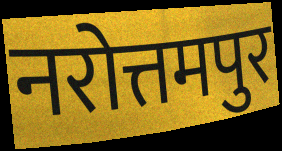
नरोत्तमपुर